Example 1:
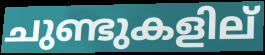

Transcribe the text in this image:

ചുണ്ടുകളില്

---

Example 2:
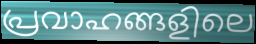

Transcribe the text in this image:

പ്രവാഹങ്ങളിലെ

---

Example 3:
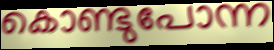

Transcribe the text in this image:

കൊണ്ടുപോന്ന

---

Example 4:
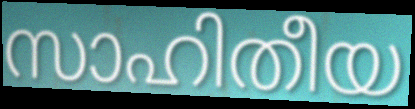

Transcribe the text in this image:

സാഹിതീയ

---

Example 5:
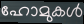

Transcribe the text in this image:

ഹോമുകൾ